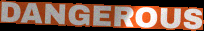
DANGEROUS